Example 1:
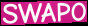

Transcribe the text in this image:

SWAPO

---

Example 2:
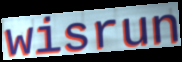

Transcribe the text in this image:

wisrun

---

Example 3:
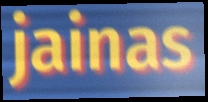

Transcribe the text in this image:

jainas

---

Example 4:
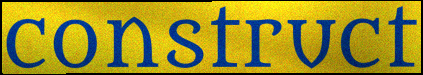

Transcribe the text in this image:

construct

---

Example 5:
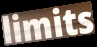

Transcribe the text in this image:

limits